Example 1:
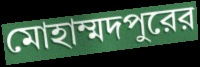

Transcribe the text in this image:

মোহাম্মদপুরের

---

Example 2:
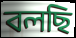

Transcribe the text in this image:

বলছি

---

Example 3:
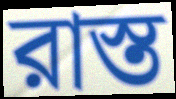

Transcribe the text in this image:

রাস্ত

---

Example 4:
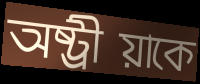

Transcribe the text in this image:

অষ্ট্রীয়াকে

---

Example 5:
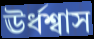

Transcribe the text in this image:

ঊর্ধশ্বাস